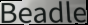
Beadle